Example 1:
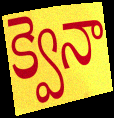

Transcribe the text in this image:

క్వెనా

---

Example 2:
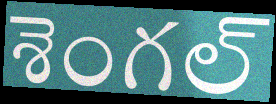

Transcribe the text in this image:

శెంగల్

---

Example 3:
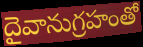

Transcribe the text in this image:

దైవానుగ్రహంతో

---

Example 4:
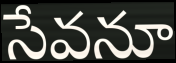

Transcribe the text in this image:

సేవనూ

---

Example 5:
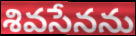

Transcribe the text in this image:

శివసేనను